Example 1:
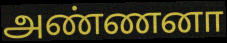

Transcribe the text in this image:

அண்ணனா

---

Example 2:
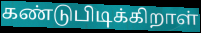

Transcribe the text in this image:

கண்டுபிடிக்கிறாள்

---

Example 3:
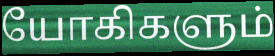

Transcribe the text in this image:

யோகிகளும்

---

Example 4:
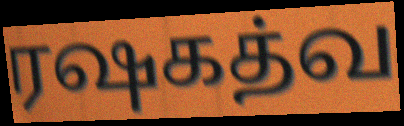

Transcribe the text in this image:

ரஷகத்வ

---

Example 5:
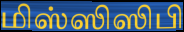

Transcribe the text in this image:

மிஸ்ஸிஸிபி